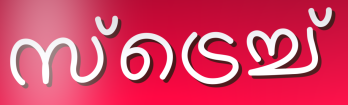
സ്ട്രെച്ച്